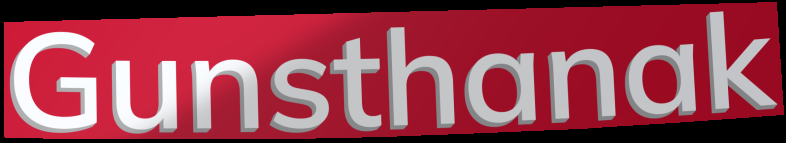
Gunsthanak